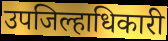
उपजिल्हाधिकारी